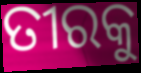
ତୀରକୁ